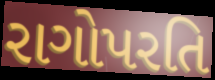
રાગોપરતિ